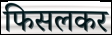
फिसलकर